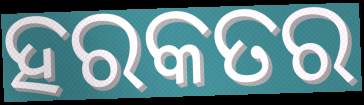
ହରକତର